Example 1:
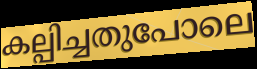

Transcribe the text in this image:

കല്പിച്ചതുപോലെ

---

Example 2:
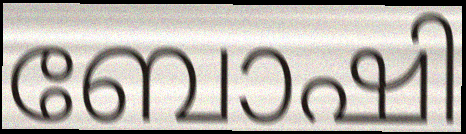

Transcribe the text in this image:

ബോഷി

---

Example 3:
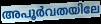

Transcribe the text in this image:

അപൂർവതയിലേ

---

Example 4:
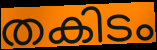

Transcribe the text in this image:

തകിടം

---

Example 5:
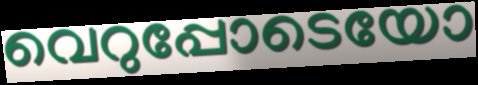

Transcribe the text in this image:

വെറുപ്പോടെയോ